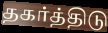
தகர்த்திடு